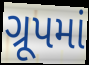
ગ્રૂપમાં